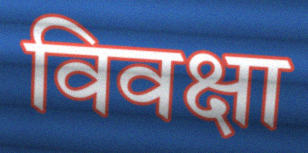
विवक्षा